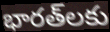
భారత్‌లకు